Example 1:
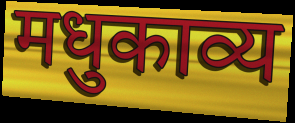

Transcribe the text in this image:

मधुकाव्य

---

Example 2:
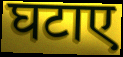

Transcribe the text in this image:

घटाए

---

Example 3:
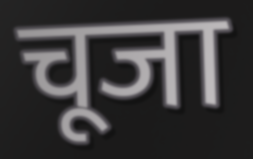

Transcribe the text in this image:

चूजा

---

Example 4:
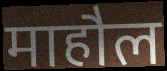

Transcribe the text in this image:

माहौल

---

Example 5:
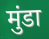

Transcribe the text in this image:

मुंडा